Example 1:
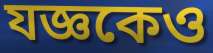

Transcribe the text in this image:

যজ্ঞকেও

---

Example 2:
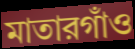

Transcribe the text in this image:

মাতারগাঁও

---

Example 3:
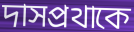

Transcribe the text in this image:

দাসপ্রথাকে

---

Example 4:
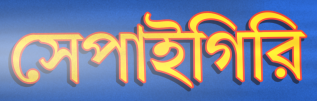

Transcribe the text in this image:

সেপাইগিরি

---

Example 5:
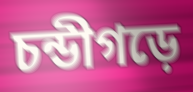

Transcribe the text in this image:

চন্ডীগড়ে